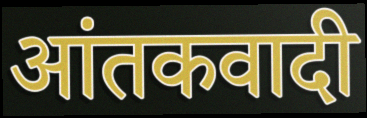
आंतकवादी